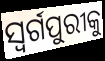
ସ୍ୱର୍ଗପୁରୀକୁ